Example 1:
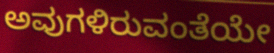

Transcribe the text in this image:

ಅವುಗಳಿರುವಂತೆಯೇ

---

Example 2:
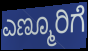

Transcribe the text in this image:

ಎಣ್ಮೂರಿಗೆ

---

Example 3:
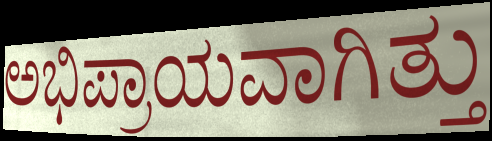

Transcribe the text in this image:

ಅಭಿಪ್ರಾಯವಾಗಿತ್ತು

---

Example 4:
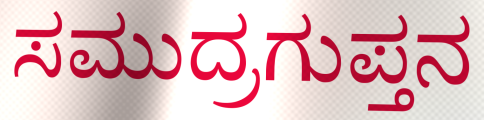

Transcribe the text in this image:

ಸಮುದ್ರಗುಪ್ತನ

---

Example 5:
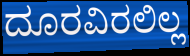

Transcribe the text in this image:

ದೂರವಿರಲಿಲ್ಲ